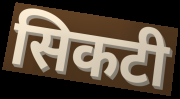
सिकटी